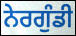
ਨੇਰਗੁੰਡੀ